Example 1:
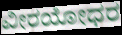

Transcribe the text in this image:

ವೀರಯೋಧರ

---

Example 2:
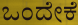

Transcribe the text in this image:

ಒಂದೇಕೆ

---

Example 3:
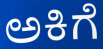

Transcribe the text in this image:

ಅಕಿಗೆ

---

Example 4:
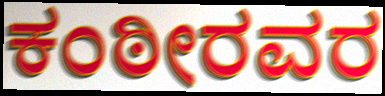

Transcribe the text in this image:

ಕಂಠೀರವರ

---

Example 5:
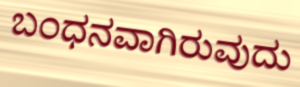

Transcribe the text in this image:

ಬಂಧನವಾಗಿರುವುದು